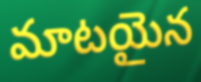
మాటయైన